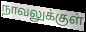
நாவலுக்குள்